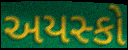
અયસ્કો